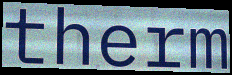
therm